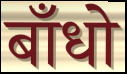
बाँधो